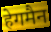
हेगमैन